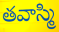
తవాస్మి